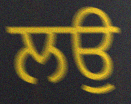
ਲਉ